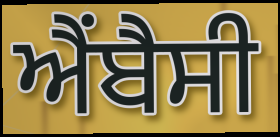
ਐਂਬੈਸੀ